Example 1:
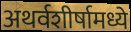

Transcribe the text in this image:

अथर्वशीर्षामध्ये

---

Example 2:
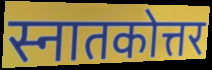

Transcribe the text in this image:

स्नातकोत्तर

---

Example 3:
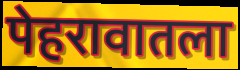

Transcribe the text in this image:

पेहरावातला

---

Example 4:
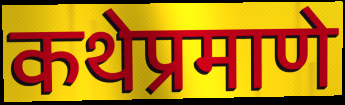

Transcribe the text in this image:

कथेप्रमाणे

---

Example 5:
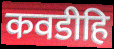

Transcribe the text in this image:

कवडीहि